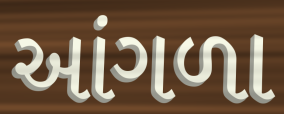
આંગળા